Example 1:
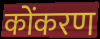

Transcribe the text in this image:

कोंकरण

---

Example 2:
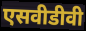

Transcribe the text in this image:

एसवीडीवी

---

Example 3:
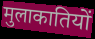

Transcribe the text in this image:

मुलाकातियों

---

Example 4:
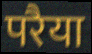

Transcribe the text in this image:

परैया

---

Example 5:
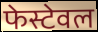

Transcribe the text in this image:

फेस्टेवल